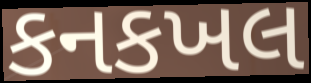
કનકખલ